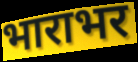
भाराभर